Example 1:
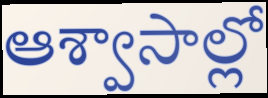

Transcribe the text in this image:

ఆశ్వాసాల్లో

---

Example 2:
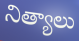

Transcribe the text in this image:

నిత్యాలు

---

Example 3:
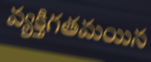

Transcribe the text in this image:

వ్యక్తిగతమయిన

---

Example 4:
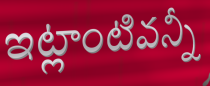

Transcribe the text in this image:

ఇట్లాంటివన్నీ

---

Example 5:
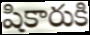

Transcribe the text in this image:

షికారుకి